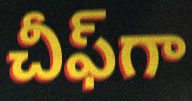
చీఫ్‌గా